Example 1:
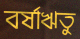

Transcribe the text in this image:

বর্ষাঋতু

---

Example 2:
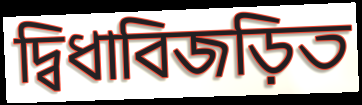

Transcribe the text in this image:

দ্বিধাবিজড়িত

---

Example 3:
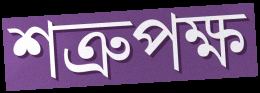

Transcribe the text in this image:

শত্রুপক্ষ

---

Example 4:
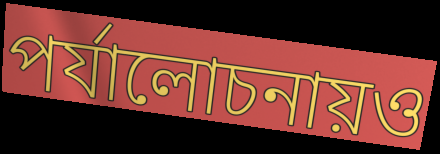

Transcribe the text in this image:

পর্যালোচনায়ও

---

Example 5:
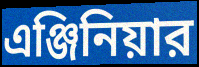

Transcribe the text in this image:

এঞ্জিনিয়ার